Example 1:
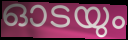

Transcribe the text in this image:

ഓടയും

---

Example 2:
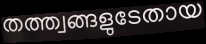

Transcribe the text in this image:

തത്ത്വങ്ങളുടേതായ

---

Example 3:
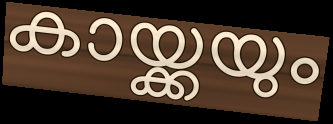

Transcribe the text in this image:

കായ്ക്കയും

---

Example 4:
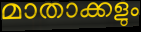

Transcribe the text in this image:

മാതാക്കളും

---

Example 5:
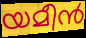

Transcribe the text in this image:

യമീൻ